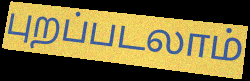
புறப்படலாம்